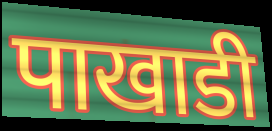
पाखाडी